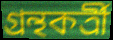
গ্রন্থকর্ত্রী